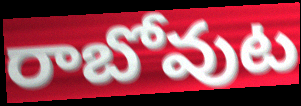
రాబోవుట